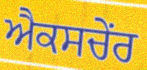
ਐਕਸਚੇਂਰ